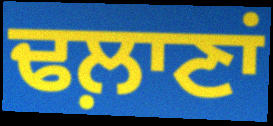
ਢਲ਼ਾਣਾਂ